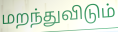
மறந்துவிடும்